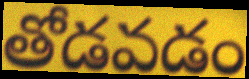
తోడవడం